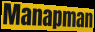
Manapman